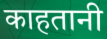
काहतानी